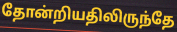
தோன்றியதிலிருந்தே